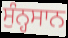
ਸੁੰਨ੍ਹਸਾਨ